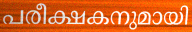
പരീക്ഷകനുമായി